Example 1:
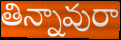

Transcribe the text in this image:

తిన్నావురా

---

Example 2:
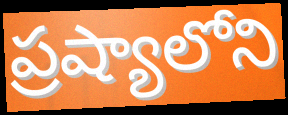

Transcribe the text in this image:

ప్రష్యాలోని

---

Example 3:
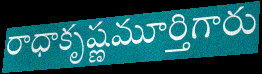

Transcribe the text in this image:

రాధాకృష్ణమూర్తిగారు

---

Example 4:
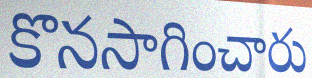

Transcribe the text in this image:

కొనసాగించారు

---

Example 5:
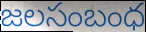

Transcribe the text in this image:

జలసంబంధ